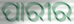
ପାରୀର